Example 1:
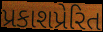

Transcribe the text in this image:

પ્રકાશપ્રેરિત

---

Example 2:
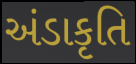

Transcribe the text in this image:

અંડાકૃતિ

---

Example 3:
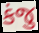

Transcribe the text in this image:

કંજુ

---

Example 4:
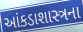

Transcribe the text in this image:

આંકડાશાસ્ત્રના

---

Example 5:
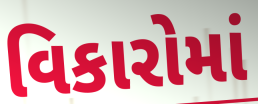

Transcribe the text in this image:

વિકારોમાં